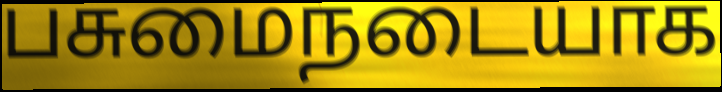
பசுமைநடையாக